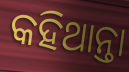
କହିଥାନ୍ତା